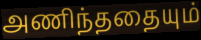
அணிந்ததையும்